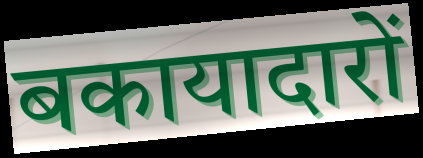
बकायादारों